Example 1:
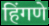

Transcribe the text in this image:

हिंगणे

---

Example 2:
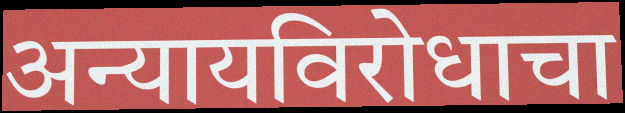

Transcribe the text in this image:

अन्यायविरोधाचा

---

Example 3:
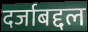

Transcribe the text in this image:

दर्जाबद्दल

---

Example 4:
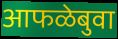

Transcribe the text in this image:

आफळेबुवा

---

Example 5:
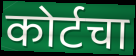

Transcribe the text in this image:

कोर्टचा